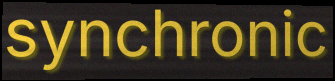
synchronic